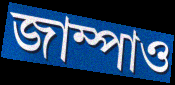
জাম্পাও